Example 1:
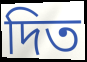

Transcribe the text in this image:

দিত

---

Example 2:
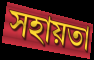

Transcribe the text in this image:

সহায়তা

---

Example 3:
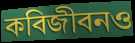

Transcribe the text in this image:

কবিজীবনও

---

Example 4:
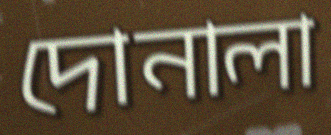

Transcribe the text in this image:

দোনালা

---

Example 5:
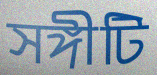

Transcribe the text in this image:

সঙ্গীটি